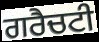
ਗਰੈਚਟੀ